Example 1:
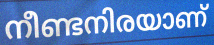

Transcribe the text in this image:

നീണ്ടനിരയാണ്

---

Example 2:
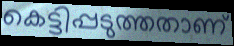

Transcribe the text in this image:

കെട്ടിപ്പടുത്തതാണ്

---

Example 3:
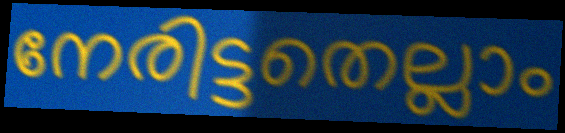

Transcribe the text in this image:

നേരിട്ടതെല്ലാം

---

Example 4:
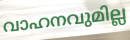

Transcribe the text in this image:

വാഹനവുമില്ല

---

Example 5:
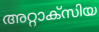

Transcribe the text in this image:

അറ്റാക്സിയ